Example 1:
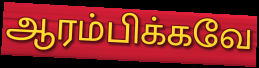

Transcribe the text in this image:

ஆரம்பிக்கவே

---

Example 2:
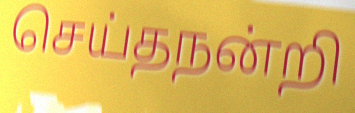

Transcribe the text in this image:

செய்தநன்றி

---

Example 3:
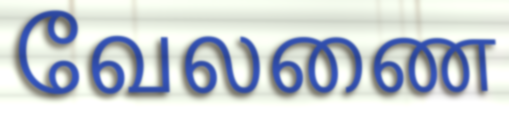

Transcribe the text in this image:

வேலணை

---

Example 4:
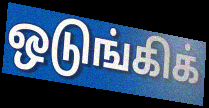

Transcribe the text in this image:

ஒடுங்கிக்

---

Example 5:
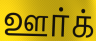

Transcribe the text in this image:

ஊர்க்